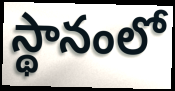
స్థానంలో